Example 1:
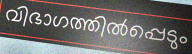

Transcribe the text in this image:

വിഭാഗത്തിൽപ്പെടും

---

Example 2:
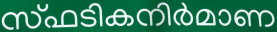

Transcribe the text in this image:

സ്ഫടികനിർമാണ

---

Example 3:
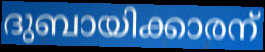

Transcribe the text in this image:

ദുബായിക്കാരന്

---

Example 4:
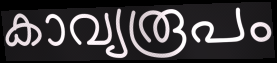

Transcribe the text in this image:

കാവ്യരൂപം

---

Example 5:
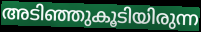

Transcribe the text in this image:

അടിഞ്ഞുകൂടിയിരുന്ന